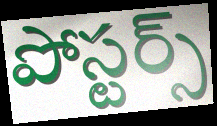
పోస్టర్స్